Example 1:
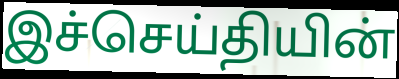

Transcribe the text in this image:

இச்செய்தியின்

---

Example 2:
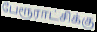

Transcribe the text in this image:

பேரூராட்சிக்கு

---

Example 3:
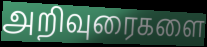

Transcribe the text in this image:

அறிவுரைகளை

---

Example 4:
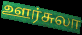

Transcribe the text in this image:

ஊர்சுலா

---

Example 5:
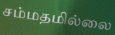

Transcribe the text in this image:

சம்மதமில்லை